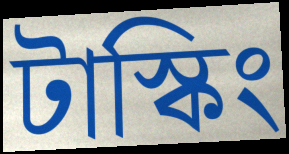
টাস্কিং